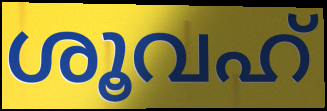
ശൂവഹ്